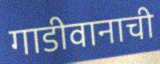
गाडीवानाची